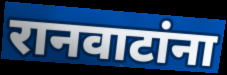
रानवाटांना